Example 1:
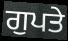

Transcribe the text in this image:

ਗੁਪਤੇ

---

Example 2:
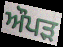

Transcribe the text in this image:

ਔਪੜ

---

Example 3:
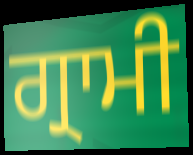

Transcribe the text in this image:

ਗ੍ਰਾਮੀ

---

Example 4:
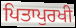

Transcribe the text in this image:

ਪਿਤਾਪੁਰਖੀ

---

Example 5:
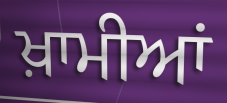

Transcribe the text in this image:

ਖ਼ਾਮੀਆਂ